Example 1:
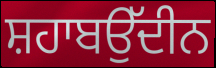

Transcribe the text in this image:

ਸ਼ਹਾਬਉੱਦੀਨ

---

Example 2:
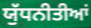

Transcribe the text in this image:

ਯੁੱਧਨੀਤੀਆਂ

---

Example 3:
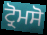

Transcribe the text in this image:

ਟ੍ਰੋਮਸੋ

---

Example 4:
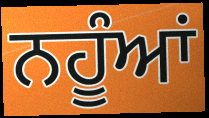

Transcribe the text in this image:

ਨਹੂੰਆਂ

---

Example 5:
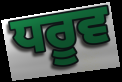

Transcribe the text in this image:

ਧਰੂਵ